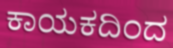
ಕಾಯಕದಿಂದ